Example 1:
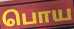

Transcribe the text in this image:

பொய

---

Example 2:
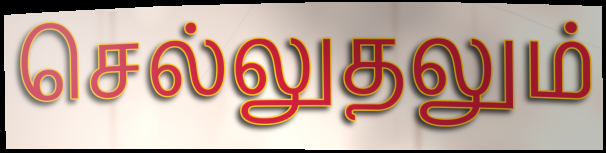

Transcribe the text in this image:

செல்லுதலும்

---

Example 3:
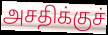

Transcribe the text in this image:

அசதிக்குச்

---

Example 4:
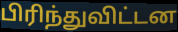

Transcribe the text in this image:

பிரிந்துவிட்டன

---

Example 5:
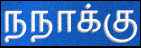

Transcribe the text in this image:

நநாக்கு